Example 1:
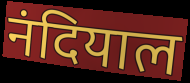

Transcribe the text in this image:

नंदियाल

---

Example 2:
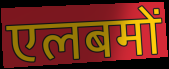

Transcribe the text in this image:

एलबमों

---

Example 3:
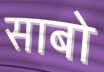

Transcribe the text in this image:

साबो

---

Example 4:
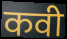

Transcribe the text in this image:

कवी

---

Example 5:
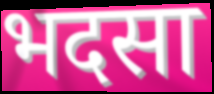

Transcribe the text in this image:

भदसा